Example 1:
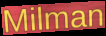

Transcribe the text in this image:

Milman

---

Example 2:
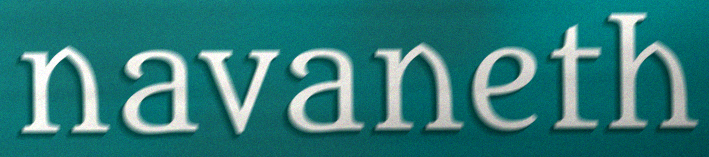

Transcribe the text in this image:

navaneth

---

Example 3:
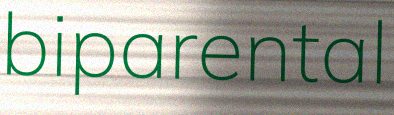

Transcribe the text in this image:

biparental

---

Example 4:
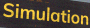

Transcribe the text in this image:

Simulation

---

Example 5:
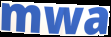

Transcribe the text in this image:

mwa